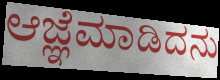
ಆಜ್ಞೆಮಾಡಿದನು